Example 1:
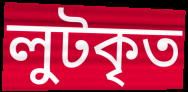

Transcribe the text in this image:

লুটকৃত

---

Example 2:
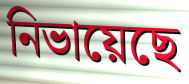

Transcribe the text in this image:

নিভায়েছে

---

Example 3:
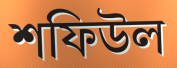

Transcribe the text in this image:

শফিউল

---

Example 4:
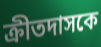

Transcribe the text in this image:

ক্রীতদাসকে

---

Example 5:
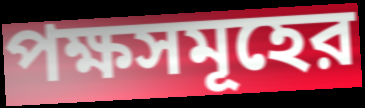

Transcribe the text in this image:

পক্ষসমূহের